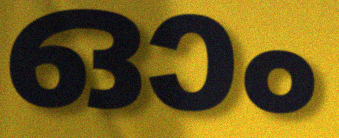
ഓം